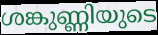
ശങ്കുണ്ണിയുടെ